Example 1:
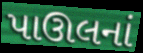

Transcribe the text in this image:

પાઊલનાં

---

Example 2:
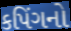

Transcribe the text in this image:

કપિંગનો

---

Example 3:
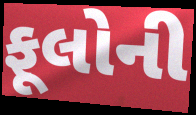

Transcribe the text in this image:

ફૂલોની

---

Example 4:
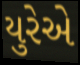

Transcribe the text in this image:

યુરેએ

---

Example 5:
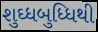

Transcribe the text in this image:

શુઘ્ધબુધ્ધિથી